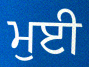
ਮੁਈ